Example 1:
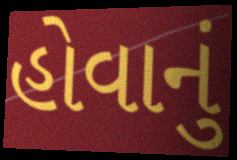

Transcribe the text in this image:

હોવાનું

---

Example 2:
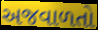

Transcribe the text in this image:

અજવાળતો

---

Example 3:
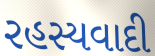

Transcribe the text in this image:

રહસ્યવાદી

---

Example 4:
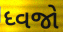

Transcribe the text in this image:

ધ્વજો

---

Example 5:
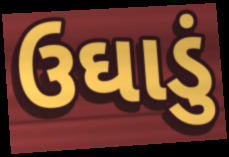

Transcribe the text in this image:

ઉઘાડું